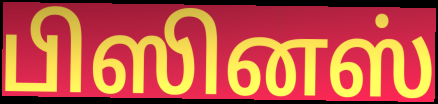
பிஸினஸ்